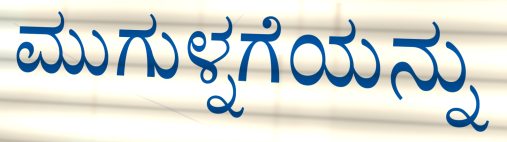
ಮುಗುಳ್ನಗೆಯನ್ನು